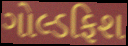
ગોલ્ડફિશ